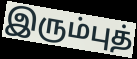
இரும்புத்